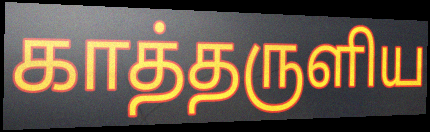
காத்தருளிய